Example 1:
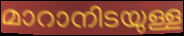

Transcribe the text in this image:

മാറാനിടയുള്ള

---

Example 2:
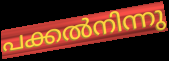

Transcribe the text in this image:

പക്കൽനിന്നു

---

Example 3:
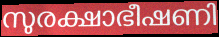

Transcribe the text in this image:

സുരക്ഷാഭീഷണി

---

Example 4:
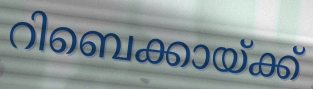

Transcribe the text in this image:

റിബെക്കായ്ക്ക്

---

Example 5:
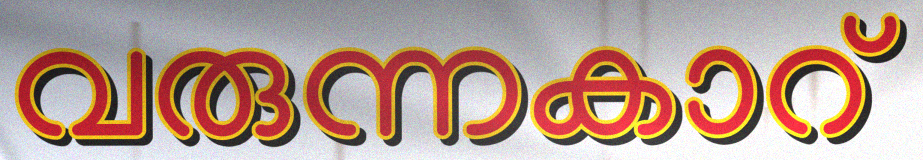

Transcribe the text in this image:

വരുന്നകാറ്